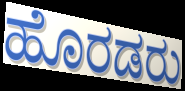
ಹೊರಡರು